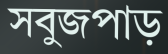
সবুজপাড়